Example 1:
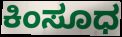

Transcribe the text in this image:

ಕಿಂಸೂಧ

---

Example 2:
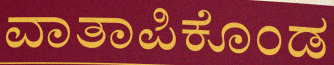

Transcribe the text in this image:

ವಾತಾಪಿಕೊಂಡ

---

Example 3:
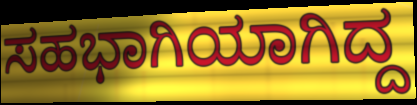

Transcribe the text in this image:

ಸಹಭಾಗಿಯಾಗಿದ್ದ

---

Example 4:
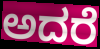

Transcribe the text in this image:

ಅದರೆ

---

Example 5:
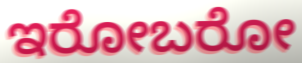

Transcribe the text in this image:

ಇರೋಬರೋ